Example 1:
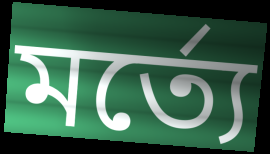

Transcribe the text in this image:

মর্ত্যে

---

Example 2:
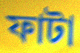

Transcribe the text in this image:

ফাটা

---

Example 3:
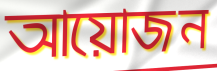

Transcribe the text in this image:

আয়োজন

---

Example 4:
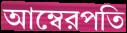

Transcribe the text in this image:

আম্বেরপতি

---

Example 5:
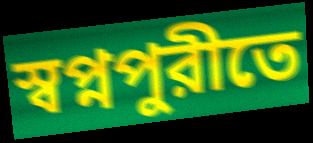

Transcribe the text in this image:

স্বপ্নপুরীতে